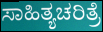
ಸಾಹಿತ್ಯಚರಿತ್ರೆ